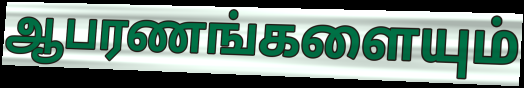
ஆபரணங்களையும்